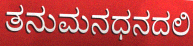
ತನುಮನಧನದಲಿ